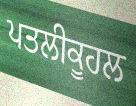
ਪਤਲੀਕੂਹਲ